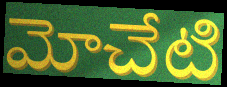
మోచేటి